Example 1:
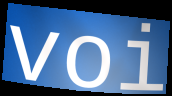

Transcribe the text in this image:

voi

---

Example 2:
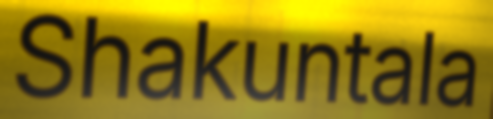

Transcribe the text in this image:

Shakuntala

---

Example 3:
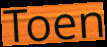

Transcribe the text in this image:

Toen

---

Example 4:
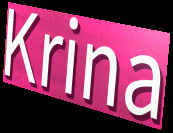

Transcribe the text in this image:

Krina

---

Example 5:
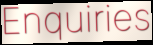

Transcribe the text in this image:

Enquiries